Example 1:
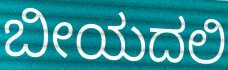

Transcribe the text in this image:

ಬೀಯದಲಿ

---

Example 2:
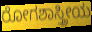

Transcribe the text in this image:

ರೋಗಶಾಸ್ತ್ರೀಯ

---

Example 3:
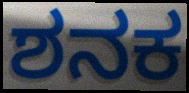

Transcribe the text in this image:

ಶನಕ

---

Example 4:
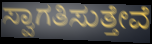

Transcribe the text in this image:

ಸ್ವಾಗತಿಸುತ್ತೇವೆ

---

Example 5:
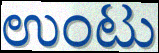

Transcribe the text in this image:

ಉಂಟು